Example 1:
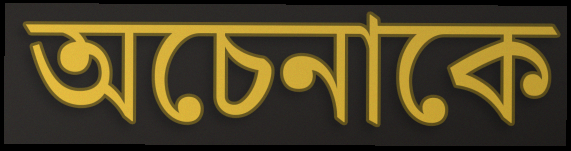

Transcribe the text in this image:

অচেনাকে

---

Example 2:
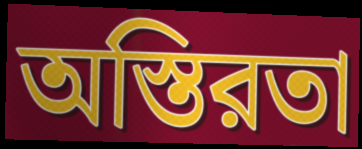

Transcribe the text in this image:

অস্তিরতা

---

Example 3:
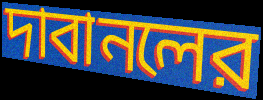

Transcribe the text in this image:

দাবানলের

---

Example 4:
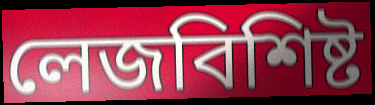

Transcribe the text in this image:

লেজবিশিষ্ট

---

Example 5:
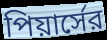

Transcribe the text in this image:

পিয়ার্সের